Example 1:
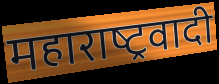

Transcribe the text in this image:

महाराष्ट्रवादी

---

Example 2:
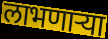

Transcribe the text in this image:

लाभणाऱ्या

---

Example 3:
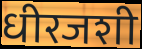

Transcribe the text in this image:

धीरजशी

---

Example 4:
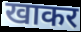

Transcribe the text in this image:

खाकर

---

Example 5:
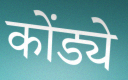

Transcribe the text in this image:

कोंड्ये